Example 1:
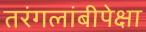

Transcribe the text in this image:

तरंगलांबीपेक्षा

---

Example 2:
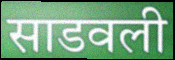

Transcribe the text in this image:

साडवली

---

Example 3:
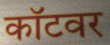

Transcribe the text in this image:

कॉटवर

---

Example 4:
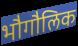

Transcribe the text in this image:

भौगौलिक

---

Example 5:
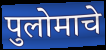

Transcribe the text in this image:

पुलोमाचे